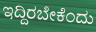
ಇದ್ದಿರಬೇಕೆಂದು